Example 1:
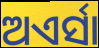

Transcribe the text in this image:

ଅଏର୍ସା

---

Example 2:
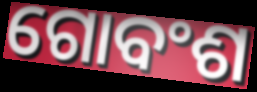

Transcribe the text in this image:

ଗୋବଂଶ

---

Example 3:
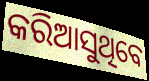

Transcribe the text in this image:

କରିଆସୁଥିବେ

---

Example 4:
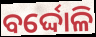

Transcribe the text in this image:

ବର୍ଦ୍ଦୋଳି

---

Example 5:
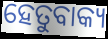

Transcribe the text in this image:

ହେତୁବାକ୍ୟ